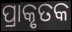
ପ୍ରାକୃତକ